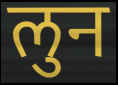
लुन